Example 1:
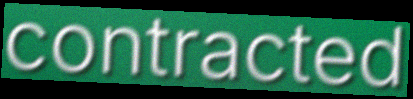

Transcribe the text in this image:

contracted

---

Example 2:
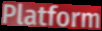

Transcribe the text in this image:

Platform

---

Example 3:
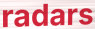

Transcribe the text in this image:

radars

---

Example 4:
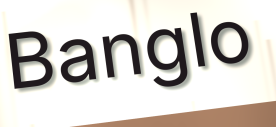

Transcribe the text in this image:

Banglo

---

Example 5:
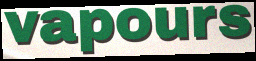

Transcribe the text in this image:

vapours